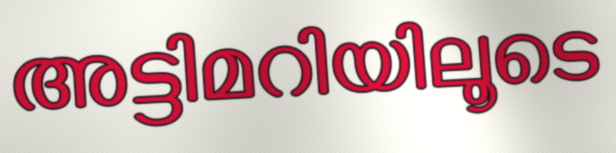
അട്ടിമറിയിലൂടെ